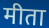
मीता